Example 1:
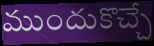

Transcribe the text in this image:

ముందుకొచ్చే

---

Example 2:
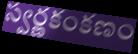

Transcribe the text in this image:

స్వర్ణకంకణం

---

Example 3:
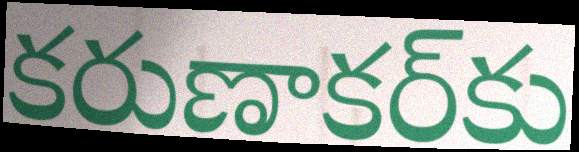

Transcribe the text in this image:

కరుణాకర్‌కు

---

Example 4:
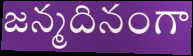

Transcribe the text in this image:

జన్మదినంగా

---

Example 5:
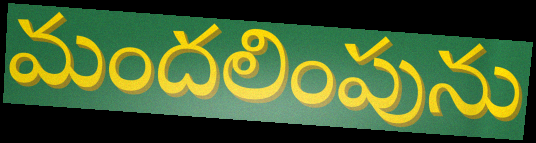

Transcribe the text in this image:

మందలింపును